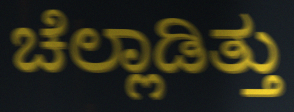
ಚೆಲ್ಲಾಡಿತ್ತು